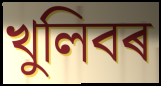
খুলিবৰ